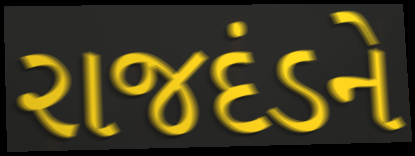
રાજદંડને